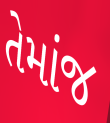
તેમાંજ